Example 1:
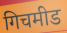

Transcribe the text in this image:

गिचमीड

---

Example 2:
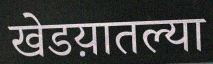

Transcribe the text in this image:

खेडय़ातल्या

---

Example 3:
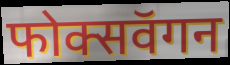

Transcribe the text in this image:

फोक्सवॅगन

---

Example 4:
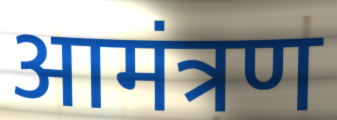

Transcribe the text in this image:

आमंत्रण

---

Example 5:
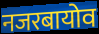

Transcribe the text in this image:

नजरबायोव